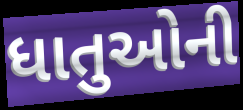
ધાતુઓની